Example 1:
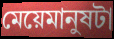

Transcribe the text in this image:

মেয়েমানুষটা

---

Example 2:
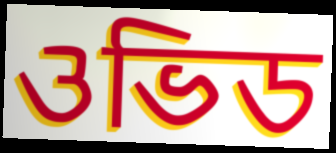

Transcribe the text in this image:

ওভিড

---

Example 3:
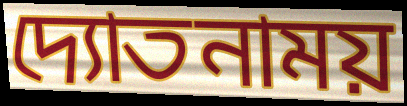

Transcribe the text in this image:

দ্যোতনাময়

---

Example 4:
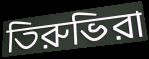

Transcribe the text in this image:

তিরুভিরা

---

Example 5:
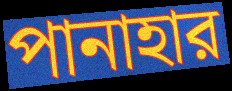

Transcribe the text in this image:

পানাহার